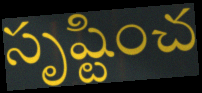
సృష్టించ